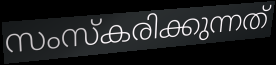
സംസ്കരിക്കുന്നത്